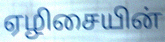
ஏழிசையின்